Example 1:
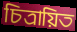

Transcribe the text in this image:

চিত্রায়িত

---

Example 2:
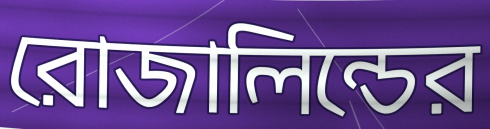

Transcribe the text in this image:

রোজালিন্ডের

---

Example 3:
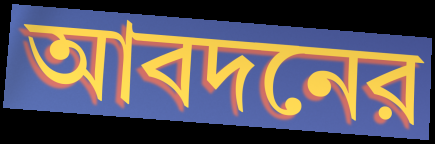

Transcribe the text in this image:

আবদনের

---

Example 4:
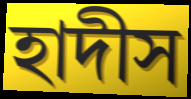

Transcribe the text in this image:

হাদীস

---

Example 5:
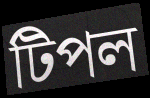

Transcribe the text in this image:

টিপল